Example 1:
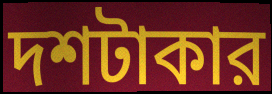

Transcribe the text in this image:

দশটাকার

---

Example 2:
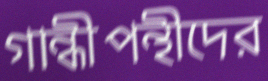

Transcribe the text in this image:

গান্ধীপন্থীদের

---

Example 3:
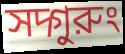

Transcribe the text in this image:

সদ্গুরুং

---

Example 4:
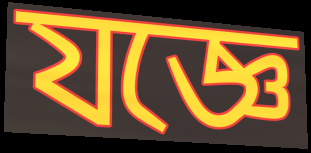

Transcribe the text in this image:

যজ্ঞে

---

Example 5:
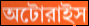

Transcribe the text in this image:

অটোরাইস